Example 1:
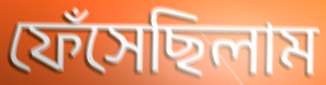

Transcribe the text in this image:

ফেঁসেছিলাম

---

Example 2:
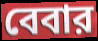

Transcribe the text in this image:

বেবার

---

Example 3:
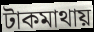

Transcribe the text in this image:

টাকমাথায়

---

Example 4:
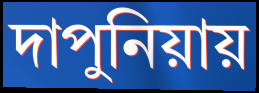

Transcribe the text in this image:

দাপুনিয়ায়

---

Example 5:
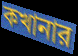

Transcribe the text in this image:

কখানার